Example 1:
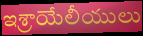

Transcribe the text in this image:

ఇశ్రాయేలీయులు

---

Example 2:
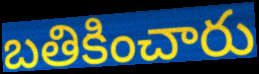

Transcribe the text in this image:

బతికించారు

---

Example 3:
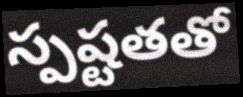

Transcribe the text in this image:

స్పష్టతతో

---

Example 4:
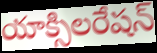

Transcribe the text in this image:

యాక్సిలరేషన్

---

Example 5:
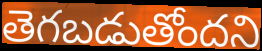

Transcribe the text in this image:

తెగబడుతోందని